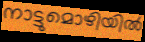
നാട്ടുമൊഴിയിൽ